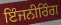
ਇੰਜਨੀਰਿੰਗ